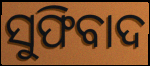
ସୁଫିବାଦ